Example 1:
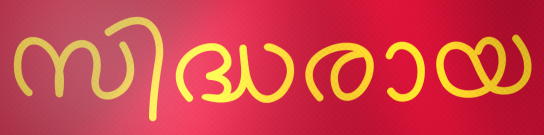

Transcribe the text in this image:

സിദ്ധരായ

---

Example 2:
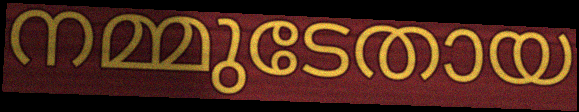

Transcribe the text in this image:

നമ്മുടേതായ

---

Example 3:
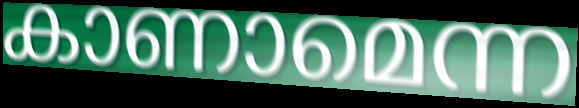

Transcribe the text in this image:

കാണാമെന്ന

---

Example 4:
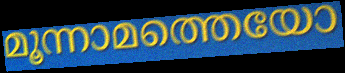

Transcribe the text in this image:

മൂന്നാമത്തെയോ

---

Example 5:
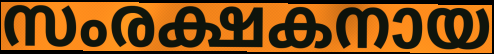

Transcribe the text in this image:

സംരക്ഷകനായ